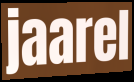
jaarel